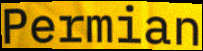
Permian